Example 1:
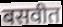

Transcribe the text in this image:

बसवीत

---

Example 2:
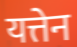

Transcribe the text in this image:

यत्तेन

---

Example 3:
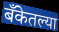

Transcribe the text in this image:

बँकेतल्या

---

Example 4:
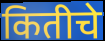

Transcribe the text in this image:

कितीचे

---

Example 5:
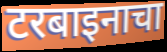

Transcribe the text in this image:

टरबाइनाचा